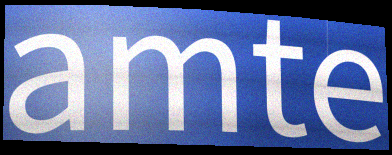
amte